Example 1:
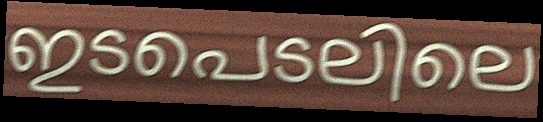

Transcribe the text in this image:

ഇടപെടലിലെ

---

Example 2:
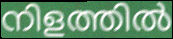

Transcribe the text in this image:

നിളത്തിൽ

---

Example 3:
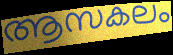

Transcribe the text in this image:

ആസകലം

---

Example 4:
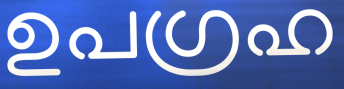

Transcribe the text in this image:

ഉപഗ്രഹ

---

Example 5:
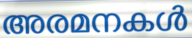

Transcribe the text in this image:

അരമനകൾ